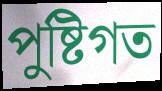
পুষ্টিগত